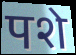
पशे